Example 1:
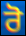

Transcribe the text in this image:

ਰੋ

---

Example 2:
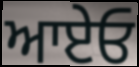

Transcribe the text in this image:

ਆਏਓ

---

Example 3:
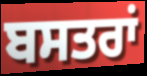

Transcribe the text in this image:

ਬਸਤਰਾਂ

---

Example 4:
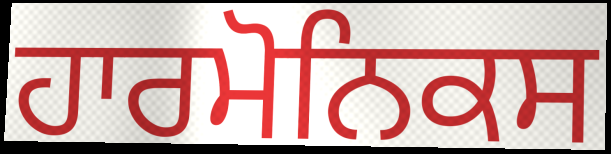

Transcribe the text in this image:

ਹਾਰਮੋਨਿਕਸ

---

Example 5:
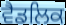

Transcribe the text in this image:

ਵੈਡਲਿਕ